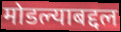
मोडल्याबद्दल